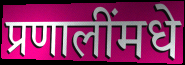
प्रणालींमधे